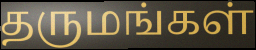
தருமங்கள்